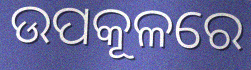
ଉପକୂଳରେ